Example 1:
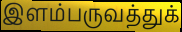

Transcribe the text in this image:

இளம்பருவத்துக்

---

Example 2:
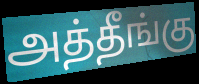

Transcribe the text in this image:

அத்தீங்கு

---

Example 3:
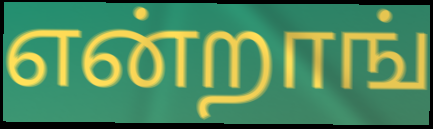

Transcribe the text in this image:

என்றாங்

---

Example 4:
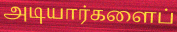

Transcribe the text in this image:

அடியார்களைப்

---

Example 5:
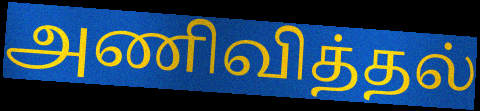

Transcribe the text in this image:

அணிவித்தல்